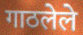
गाठलेले